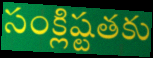
సంక్లిష్టతకు